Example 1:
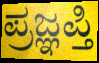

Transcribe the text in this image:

ಪ್ರಜ್ಞಪ್ತಿ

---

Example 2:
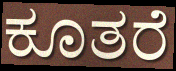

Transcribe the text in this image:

ಕೂತರೆ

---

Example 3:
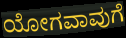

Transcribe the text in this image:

ಯೋಗವಾವುಗೆ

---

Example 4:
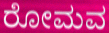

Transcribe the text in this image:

ರೋಮವ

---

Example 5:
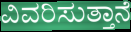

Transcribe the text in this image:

ವಿವರಿಸುತ್ತಾನೆ